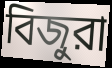
বিজুরা